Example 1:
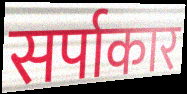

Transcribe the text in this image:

सर्पाकार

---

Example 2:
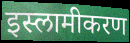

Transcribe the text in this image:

इस्लामीकरण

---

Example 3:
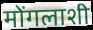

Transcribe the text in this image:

मोंगलाशी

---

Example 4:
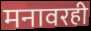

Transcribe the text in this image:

मनावरही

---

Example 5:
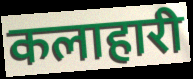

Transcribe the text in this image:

कलाहारी